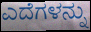
ಎದೆಗಳನ್ನು